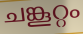
ചങ്കൂറ്റം